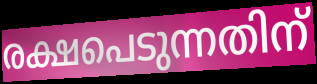
രക്ഷപെടുന്നതിന്